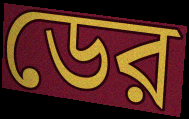
ডের